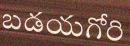
బడయగోరి